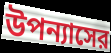
উপন্যাসের